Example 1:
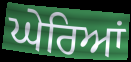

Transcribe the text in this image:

ਘੇਰਿਆਂ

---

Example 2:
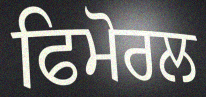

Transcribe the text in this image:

ਫਿਮੋਰਲ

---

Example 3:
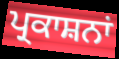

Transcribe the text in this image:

ਪ੍ਰਕਾਸ਼ਨਾਂ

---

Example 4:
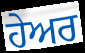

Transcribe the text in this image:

ਹੇਅਰ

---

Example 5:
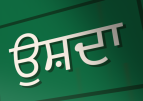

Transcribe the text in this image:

ਉਸ਼ਦਾ